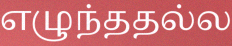
எழுந்ததல்ல